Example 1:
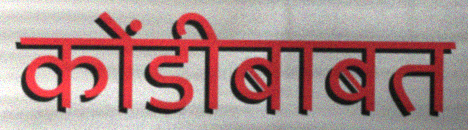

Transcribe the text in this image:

कोंडीबाबत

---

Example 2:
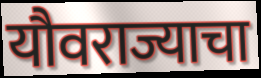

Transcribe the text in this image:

यौवराज्याचा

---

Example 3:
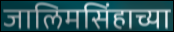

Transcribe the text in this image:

जालिमसिंहाच्या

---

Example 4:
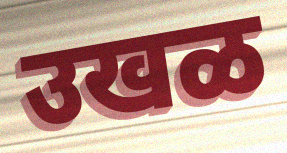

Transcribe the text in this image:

उखळ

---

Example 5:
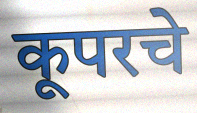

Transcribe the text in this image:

कूपरचे